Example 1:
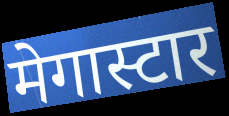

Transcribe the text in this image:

मेगास्टार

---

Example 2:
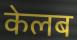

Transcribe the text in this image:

केलब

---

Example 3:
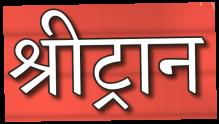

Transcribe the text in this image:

श्रीट्रान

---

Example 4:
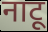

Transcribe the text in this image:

नाटू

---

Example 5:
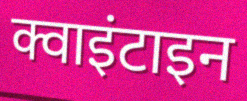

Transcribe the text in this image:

क्वाइंटाइन